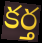
కర్త